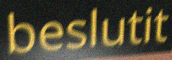
beslutit